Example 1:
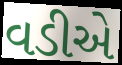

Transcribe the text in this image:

વડીએ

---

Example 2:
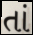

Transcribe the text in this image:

તાં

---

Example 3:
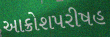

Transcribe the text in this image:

આક્રોશપરીષહ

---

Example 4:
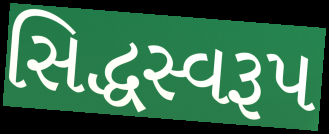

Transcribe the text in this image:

સિદ્ધસ્વરૂપ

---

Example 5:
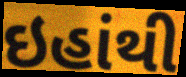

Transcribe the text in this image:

ઇહાંથી